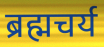
ब्रह्मचर्य